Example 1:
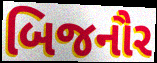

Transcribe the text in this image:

બિજનૌર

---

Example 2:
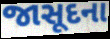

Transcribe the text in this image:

જાસૂદના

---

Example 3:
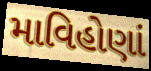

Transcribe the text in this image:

માવિહોણાં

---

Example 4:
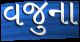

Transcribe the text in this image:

વજુના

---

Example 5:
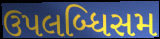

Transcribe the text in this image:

ઉપલબ્ધિસમ